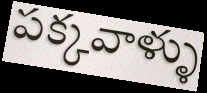
పక్కవాళ్ళు